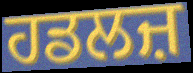
ਹਡਲਜ਼